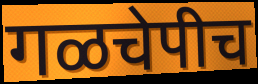
गळचेपीच